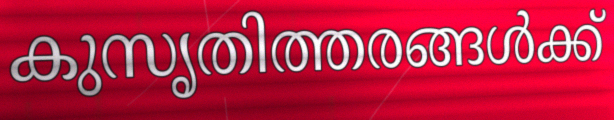
കുസൃതിത്തരങ്ങൾക്ക്